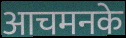
आचमनके